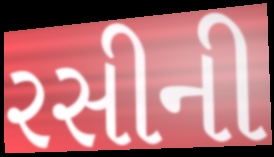
રસીની